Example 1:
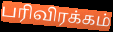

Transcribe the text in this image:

பரிவிரக்கம்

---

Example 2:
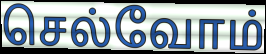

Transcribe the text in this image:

செல்வோம்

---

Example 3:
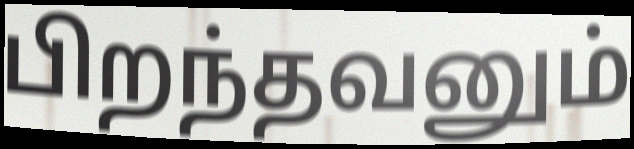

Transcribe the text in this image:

பிறந்தவனும்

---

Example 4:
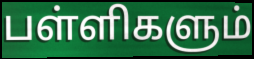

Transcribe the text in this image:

பள்ளிகளும்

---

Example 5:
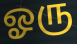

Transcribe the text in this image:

ஓரு